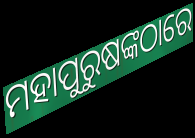
ମହାପୁରୁଷଙ୍କଠାରେ